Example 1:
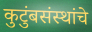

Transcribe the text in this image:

कुटुंबसंस्थांचे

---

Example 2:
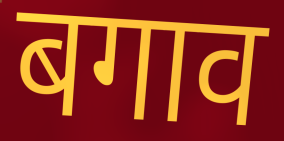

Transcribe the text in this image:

बगाव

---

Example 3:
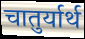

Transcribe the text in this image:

चातुर्यार्थ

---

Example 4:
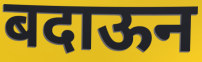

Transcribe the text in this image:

बदाऊन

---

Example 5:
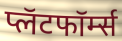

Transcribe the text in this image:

प्लॅटफॉर्म्स